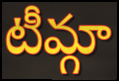
టీమ్గా